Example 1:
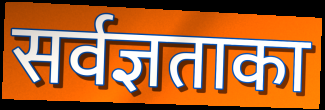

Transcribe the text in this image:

सर्वज्ञताका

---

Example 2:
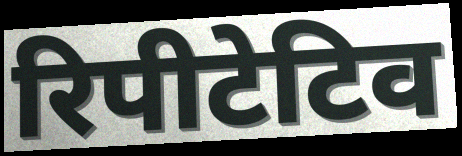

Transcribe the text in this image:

रिपीटेटिव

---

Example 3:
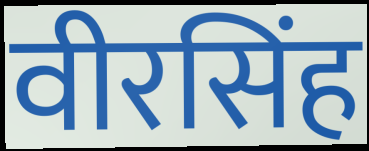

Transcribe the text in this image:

वीरसिंह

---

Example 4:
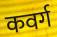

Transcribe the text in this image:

कवर्ग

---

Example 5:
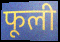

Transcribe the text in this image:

फूली